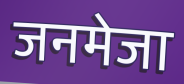
जनमेजा